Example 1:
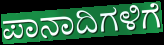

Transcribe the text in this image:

ಪಾನಾದಿಗಳಿಗೆ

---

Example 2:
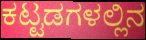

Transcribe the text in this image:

ಕಟ್ಟಡಗಳಲ್ಲಿನ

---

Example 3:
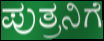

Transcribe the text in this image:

ಪುತ್ರನಿಗೆ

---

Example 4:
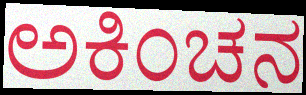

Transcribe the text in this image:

ಅಕಿಂಚನ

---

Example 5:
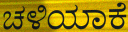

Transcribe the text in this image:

ಚಳಿಯಾಕೆ